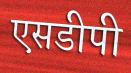
एसडीपी